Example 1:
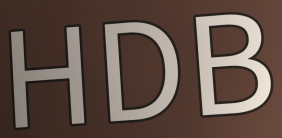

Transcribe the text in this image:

HDB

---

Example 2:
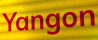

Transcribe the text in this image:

Yangon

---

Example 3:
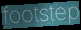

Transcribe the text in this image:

footstep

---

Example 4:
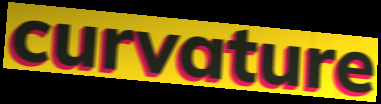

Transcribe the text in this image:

curvature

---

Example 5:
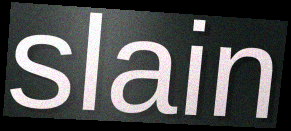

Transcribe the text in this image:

slain